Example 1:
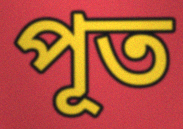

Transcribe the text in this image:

পূত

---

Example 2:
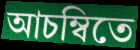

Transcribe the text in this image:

আচম্বিতে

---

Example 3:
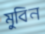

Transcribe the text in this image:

মুবিন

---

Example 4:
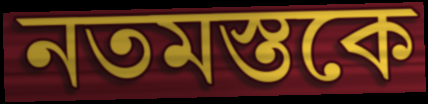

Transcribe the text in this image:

নতমস্তকে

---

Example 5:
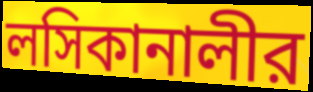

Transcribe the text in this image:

লসিকানালীর